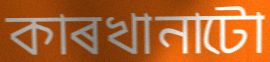
কাৰখানাটো